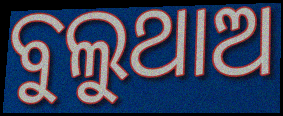
ବୁଲୁଥାଅ